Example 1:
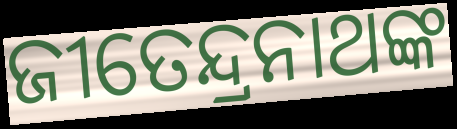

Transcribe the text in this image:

ଜୀତେନ୍ଦ୍ରନାଥଙ୍କ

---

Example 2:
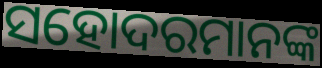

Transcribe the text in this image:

ସହୋଦରମାନଙ୍କ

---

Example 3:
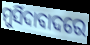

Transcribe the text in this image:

ମୁର୍ସିଦାବାଦରେ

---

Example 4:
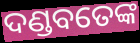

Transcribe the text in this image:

ଦଣ୍ଡବତେଙ୍କ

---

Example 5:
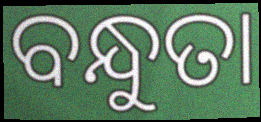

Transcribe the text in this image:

ବନ୍ଧୁତା